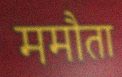
ममौता